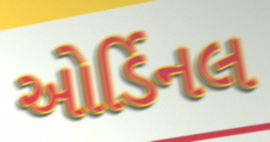
ઓર્ડિનલ